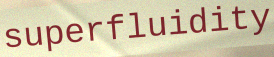
superfluidity